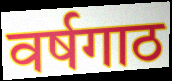
वर्षगाठ